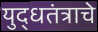
युद्धतंत्राचे